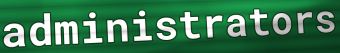
administrators